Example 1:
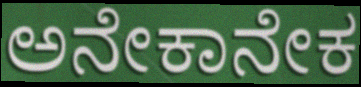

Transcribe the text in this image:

ಅನೇಕಾನೇಕ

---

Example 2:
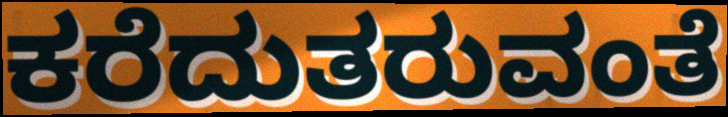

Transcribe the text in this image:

ಕರೆದುತರುವಂತೆ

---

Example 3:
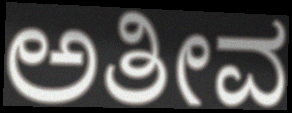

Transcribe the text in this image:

ಅತೀವ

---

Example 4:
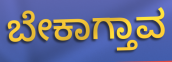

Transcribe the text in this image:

ಬೇಕಾಗ್ತಾವ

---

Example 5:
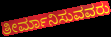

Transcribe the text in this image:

ತೀರ್ಮಾನಿಸುವವರು